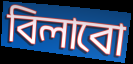
বিলাবো